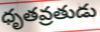
ధృతవ్రతుడు